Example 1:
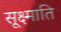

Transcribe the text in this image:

सूक्ष्माति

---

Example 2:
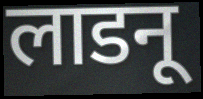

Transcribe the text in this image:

लाडनू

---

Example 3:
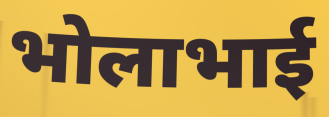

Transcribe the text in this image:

भोलाभाई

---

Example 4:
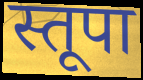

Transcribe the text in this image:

स्तूपा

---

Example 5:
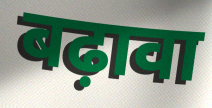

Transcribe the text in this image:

बढ़ावा